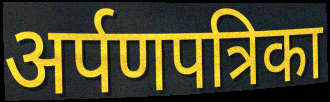
अर्पणपत्रिका